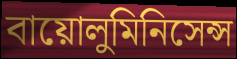
বায়োলুমিনিসেন্স